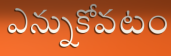
ఎన్నుకోవటం